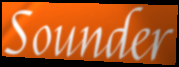
Sounder